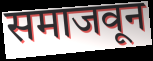
समाजवून